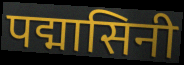
पद्मासिनी